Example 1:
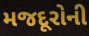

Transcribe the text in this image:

મજદૂરોની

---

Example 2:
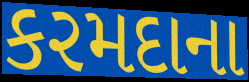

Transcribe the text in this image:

કરમદાના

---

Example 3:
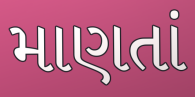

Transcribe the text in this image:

માણતાં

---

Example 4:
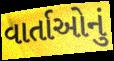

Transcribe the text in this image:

વાર્તાઓનું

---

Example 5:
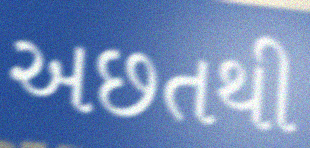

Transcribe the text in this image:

અછતથી